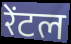
रेंटल